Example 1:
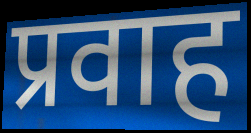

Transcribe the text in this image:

प्रवाह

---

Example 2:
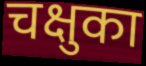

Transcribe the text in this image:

चक्षुका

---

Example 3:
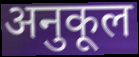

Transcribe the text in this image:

अनुकूल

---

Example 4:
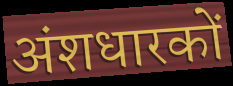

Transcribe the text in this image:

अंशधारकों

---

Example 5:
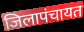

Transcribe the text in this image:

जिलापंचायत